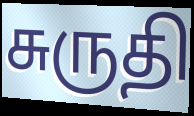
சுருதி